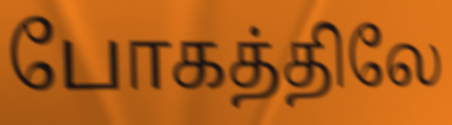
போகத்திலே